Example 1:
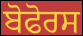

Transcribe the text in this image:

ਬੋਫੋਰਸ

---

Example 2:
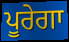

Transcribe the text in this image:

ਪੂਰੇਗਾ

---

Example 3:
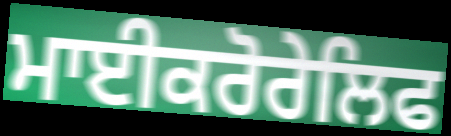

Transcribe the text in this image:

ਮਾਈਕਰੋਰੇਲਿਫ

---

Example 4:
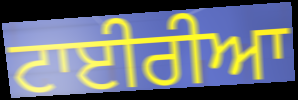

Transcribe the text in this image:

ਟਾਈਰੀਆ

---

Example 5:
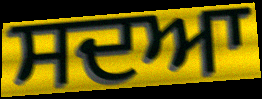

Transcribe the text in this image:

ਸਦਆ